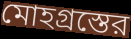
মোহগ্রস্তের